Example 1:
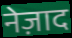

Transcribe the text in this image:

नेज़ाद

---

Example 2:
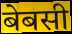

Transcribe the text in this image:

बेबसी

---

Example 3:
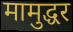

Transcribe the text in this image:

मामुद्धर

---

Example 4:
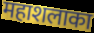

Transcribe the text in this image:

महाशलाका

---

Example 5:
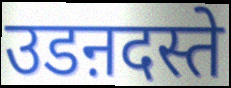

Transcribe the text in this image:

उडऩदस्ते